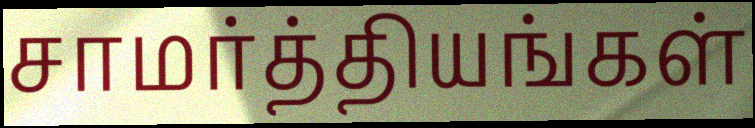
சாமர்த்தியங்கள்